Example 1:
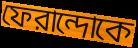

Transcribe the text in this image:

ফেরান্দোকে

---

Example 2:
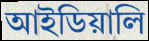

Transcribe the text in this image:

আইডিয়ালি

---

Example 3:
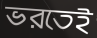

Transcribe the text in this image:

ভরতেই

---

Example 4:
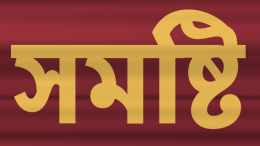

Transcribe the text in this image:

সমষ্টি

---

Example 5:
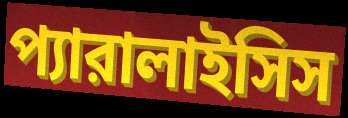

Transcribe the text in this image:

প্যারালাইসিস